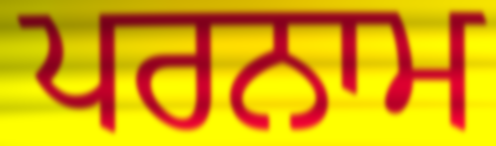
ਪਰਨਾਮ